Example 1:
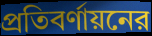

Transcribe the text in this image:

প্রতিবর্ণায়নের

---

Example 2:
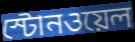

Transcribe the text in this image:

স্টোনওয়েল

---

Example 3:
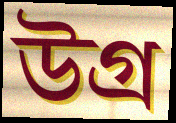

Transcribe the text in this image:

উগ্র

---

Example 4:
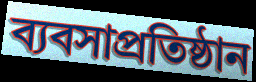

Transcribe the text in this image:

ব্যবসাপ্রতিষ্ঠান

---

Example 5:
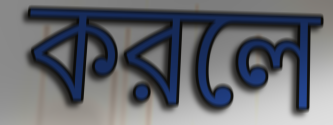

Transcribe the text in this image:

করলে